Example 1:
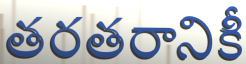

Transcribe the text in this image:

తరతరానికీ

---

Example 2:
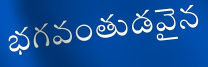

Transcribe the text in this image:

భగవంతుడవైన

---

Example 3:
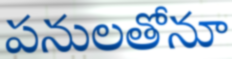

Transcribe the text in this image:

పనులతోనూ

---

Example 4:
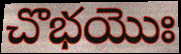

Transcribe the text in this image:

చొభయొః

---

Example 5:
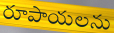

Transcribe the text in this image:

రూపాయలను